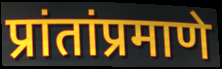
प्रांतांप्रमाणे